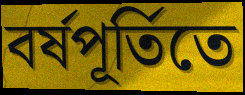
বর্ষপূর্তিতে